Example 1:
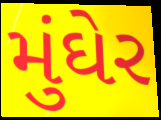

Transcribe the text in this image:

મુંઘેર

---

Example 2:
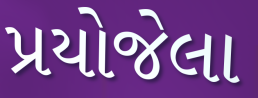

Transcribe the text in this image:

પ્રયોજેલા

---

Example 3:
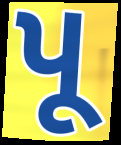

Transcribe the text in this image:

પૂ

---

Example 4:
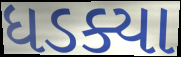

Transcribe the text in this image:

ધડક્યા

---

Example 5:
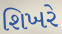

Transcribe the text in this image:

શિખરે